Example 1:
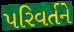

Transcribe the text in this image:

પરિવર્તને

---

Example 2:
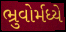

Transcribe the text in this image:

ભ્રુવોર્મધ્યે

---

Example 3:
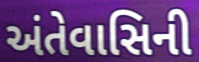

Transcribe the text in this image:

અંતેવાસિની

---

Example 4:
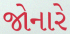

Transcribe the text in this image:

જોનારે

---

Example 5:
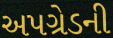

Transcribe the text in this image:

અપગ્રેડની